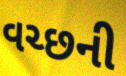
વચ્છની